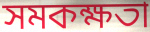
সমকক্ষতা